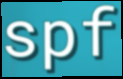
spf